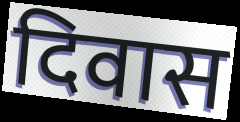
दिवास